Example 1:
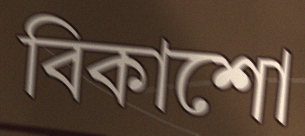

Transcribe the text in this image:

বিকাশো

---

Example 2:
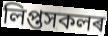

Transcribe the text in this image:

লিপ্তসকলৰ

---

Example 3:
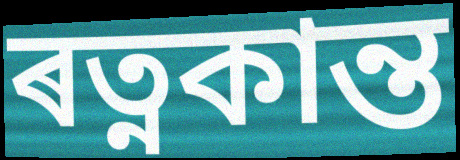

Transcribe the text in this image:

ৰত্নকান্ত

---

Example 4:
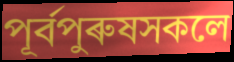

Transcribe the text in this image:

পূৰ্বপুৰুষসকলে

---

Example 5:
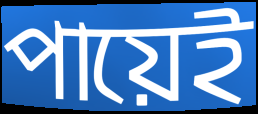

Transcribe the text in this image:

পায়েই